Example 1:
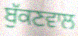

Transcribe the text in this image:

ਬੁੱਕਣਵਾਲ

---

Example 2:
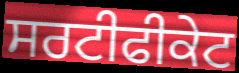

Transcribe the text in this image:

ਸਰਟੀਫੀਕੇਟ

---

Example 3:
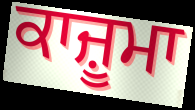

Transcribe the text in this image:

ਕਾਜ਼ੂਮਾ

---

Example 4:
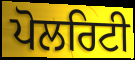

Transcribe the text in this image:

ਪੋਲਰਿਟੀ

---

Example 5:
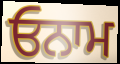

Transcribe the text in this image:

ਓਨਾਮ